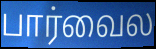
பார்வைல